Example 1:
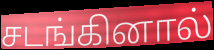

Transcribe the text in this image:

சடங்கினால்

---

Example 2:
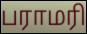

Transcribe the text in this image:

பராமரி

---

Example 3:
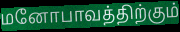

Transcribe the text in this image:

மனோபாவத்திற்கும்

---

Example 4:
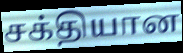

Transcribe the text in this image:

சக்தியான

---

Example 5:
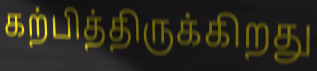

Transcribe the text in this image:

கற்பித்திருக்கிறது